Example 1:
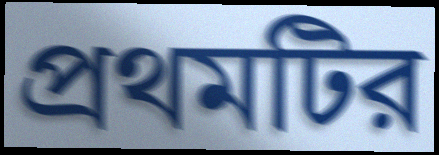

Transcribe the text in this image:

প্রথমটির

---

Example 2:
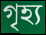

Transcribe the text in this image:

গৃহ্য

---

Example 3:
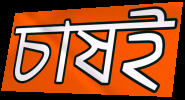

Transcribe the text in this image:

চাষই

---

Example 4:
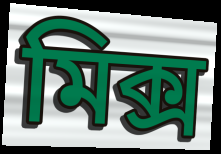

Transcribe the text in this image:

মিক্স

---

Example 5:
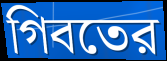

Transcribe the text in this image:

গিবতের